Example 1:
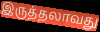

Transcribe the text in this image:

இருத்தலாவது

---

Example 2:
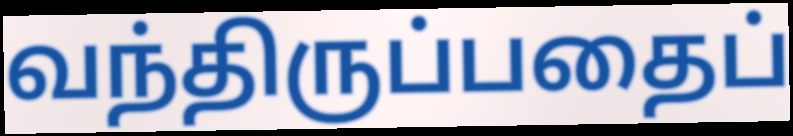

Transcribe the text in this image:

வந்திருப்பதைப்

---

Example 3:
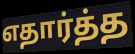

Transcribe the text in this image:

எதார்த்த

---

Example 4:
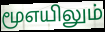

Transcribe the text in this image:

மூஎயிலும்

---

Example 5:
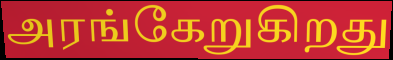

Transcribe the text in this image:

அரங்கேறுகிறது